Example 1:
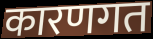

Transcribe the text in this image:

कारणगत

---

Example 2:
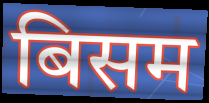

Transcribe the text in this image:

बिसम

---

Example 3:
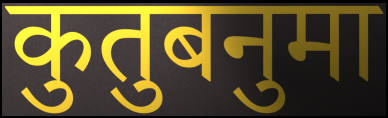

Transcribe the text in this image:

कुतुबनुमा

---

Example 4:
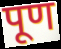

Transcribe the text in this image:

पूण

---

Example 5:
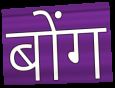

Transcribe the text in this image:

बोंग